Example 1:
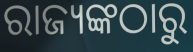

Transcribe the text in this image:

ରାଜ୍ୟଙ୍କଠାରୁ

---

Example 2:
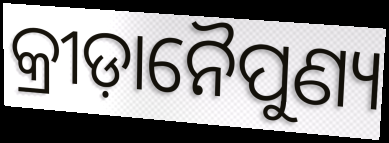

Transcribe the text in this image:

କ୍ରୀଡ଼ାନୈପୁଣ୍ୟ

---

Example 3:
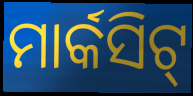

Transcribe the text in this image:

ମାର୍କସିଟ୍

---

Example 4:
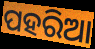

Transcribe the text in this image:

ପହରିଆ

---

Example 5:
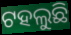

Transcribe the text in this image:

ଟହଲୁଛି